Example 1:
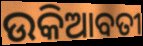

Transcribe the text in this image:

ଉକିଆବତୀ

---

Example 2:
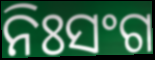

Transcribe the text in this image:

ନିଃସଂଗ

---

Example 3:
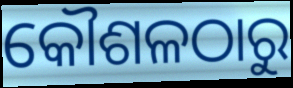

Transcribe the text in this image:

କୌଶଳଠାରୁ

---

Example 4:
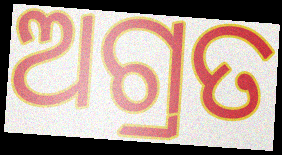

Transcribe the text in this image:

ଅଗ୍ରତ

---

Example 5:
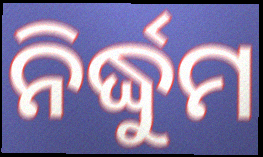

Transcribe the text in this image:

ନିର୍ଦ୍ଧୁମ